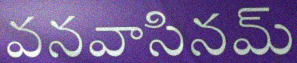
వనవాసినమ్